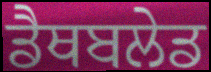
ਡੈਥਬਲੇਡ